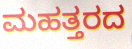
ಮಹತ್ತರದ